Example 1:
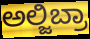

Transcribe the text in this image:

ಅಲ್ಜಿಬ್ರಾ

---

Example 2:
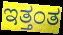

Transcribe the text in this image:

ಇತ್ತಂತ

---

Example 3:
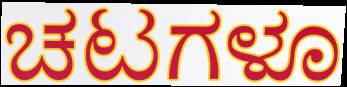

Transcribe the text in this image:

ಚಟಗಳೂ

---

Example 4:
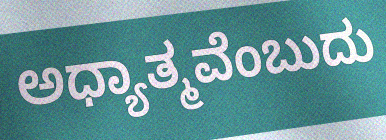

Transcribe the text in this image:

ಅಧ್ಯಾತ್ಮವೆಂಬುದು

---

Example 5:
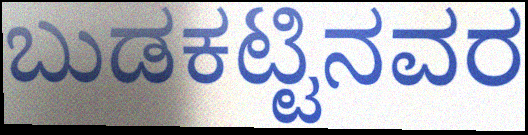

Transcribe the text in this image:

ಬುಡಕಟ್ಟಿನವರ